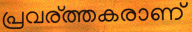
പ്രവര്ത്തകരാണ്